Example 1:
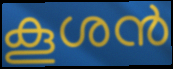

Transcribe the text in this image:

കൂശൻ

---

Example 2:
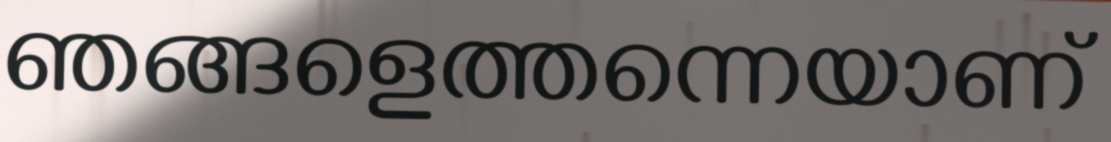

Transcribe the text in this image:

ഞങ്ങളെത്തന്നെയാണ്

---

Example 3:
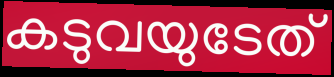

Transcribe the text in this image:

കടുവയുടേത്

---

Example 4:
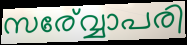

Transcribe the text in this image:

സര്വ്വോപരി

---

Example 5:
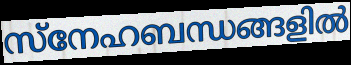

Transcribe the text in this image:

സ്നേഹബന്ധങ്ങളിൽ